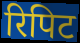
रिपिट